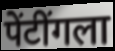
पेंटींगला